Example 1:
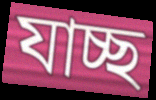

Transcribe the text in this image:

যাচ্ছ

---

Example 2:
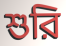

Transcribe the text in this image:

শুরি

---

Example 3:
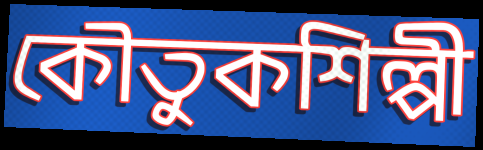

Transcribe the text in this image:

কৌতুকশিল্পী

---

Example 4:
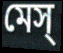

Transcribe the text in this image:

মেস্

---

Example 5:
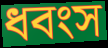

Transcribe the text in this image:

ধবংস